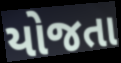
યોજતા